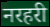
नरहरी